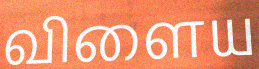
விளைய